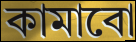
কামাবো